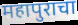
महापुराचा